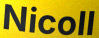
Nicoll